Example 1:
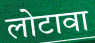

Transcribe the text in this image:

लोटावा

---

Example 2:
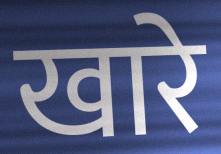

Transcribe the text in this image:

खारे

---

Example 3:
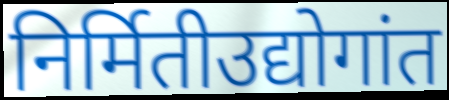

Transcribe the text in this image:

निर्मितीउद्योगांत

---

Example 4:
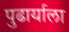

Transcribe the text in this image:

पुढार्याला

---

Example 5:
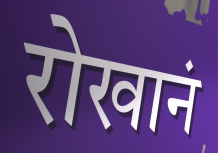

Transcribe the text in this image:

रोखानं